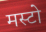
मस्टो